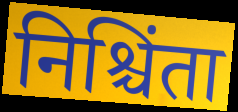
निश्चिंता